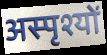
अस्पृश्यों